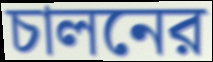
চালনের